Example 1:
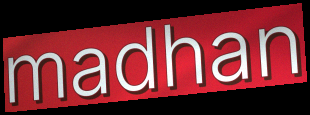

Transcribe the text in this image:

madhan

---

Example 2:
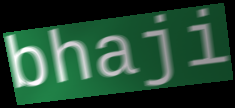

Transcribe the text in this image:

bhaji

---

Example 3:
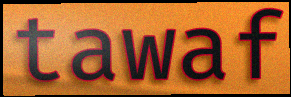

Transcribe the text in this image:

tawaf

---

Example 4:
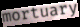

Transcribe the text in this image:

mortuary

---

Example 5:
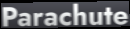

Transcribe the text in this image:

Parachute